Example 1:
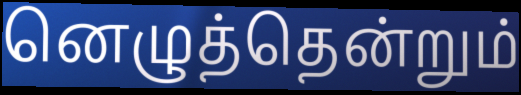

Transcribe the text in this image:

னெழுத்தென்றும்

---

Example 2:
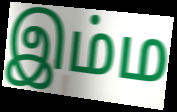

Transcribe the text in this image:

இம்ம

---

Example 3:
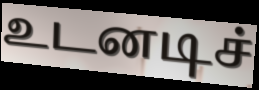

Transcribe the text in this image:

உடனடிச்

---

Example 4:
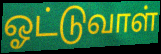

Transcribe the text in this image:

ஓட்டுவாள்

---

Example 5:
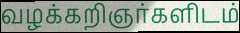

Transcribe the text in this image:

வழக்கறிஞர்களிடம்